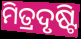
ମିତ୍ରଦୃଷ୍ଟି